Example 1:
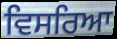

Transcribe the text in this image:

ਵਿਸਰਿਆ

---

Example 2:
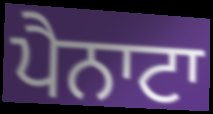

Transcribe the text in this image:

ਪੈਨਾਟਾ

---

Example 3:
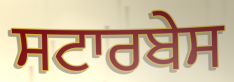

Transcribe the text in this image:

ਸਟਾਰਬੇਸ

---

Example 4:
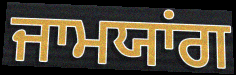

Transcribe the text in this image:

ਜਾਮਯਾਂਗ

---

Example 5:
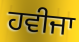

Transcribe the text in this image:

ਹਵੀਜਾ